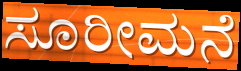
ಸೂರೀಮನೆ